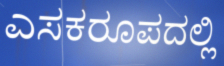
ಎಸಕರೂಪದಲ್ಲಿ